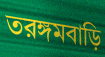
তরঙ্গমবাড়ি